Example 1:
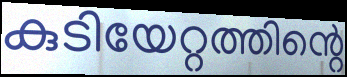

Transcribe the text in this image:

കുടിയേറ്റത്തിന്റെ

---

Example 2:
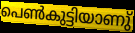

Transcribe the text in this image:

പെൺകുട്ടിയാണു്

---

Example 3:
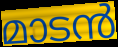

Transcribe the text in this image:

മാടൻ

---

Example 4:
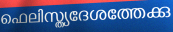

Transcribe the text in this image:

ഫെലിസ്ത്യദേശത്തേക്കു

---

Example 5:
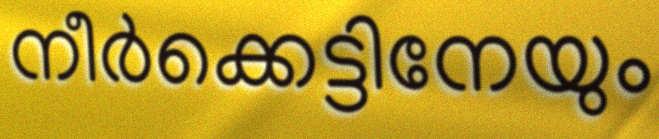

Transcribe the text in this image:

നീർക്കെട്ടിനേയും